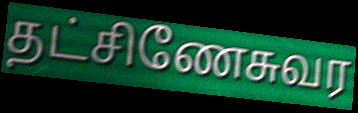
தட்சிணேசுவர